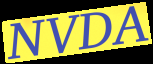
NVDA